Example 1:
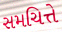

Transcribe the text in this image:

સમચિત્તે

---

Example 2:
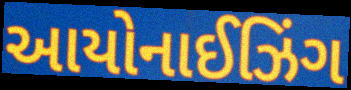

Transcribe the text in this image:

આયોનાઈઝિંગ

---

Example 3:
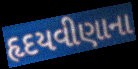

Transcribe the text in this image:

હૃદયવીણાના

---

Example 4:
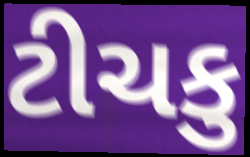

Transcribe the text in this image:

ટીચકુ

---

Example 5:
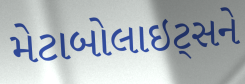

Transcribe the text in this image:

મેટાબોલાઇટ્સને